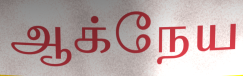
ஆக்நேய